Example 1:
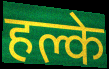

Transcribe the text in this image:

हल्के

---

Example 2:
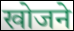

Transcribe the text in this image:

खोजने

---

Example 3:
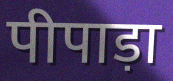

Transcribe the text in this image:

पीपाड़ा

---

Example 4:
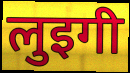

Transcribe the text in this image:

लुइगी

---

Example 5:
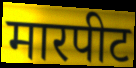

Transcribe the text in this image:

मारपीट